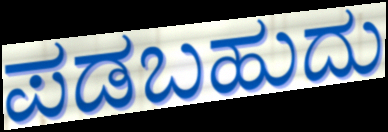
ಪಡಬಹುದು